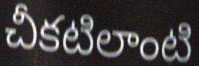
చీకటిలాంటి